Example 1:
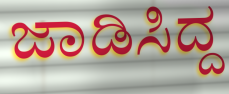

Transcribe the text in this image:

ಜಾಡಿಸಿದ್ದ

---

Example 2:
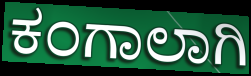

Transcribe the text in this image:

ಕಂಗಾಲಾಗಿ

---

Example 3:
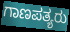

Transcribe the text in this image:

ಗಾಣಪತ್ಯರು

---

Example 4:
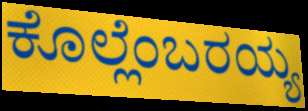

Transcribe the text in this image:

ಕೊಲ್ಲೆಂಬರಯ್ಯ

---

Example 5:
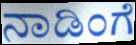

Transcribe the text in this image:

ನಾಡಿಂಗೆ